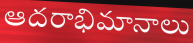
ఆదరాభిమానాలు